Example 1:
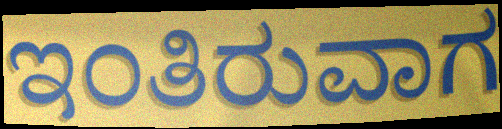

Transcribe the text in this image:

ಇಂತಿರುವಾಗ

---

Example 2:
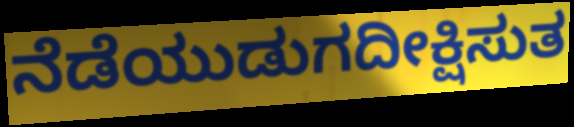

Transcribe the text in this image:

ನೆಡೆಯುಡುಗದೀಕ್ಷಿಸುತ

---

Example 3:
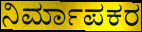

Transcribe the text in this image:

ನಿರ್ಮಾಪಕರ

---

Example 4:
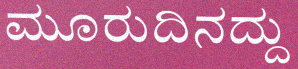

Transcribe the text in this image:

ಮೂರುದಿನದ್ದು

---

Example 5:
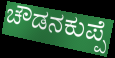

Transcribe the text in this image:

ಚೌಡನಕುಪ್ಪೆ